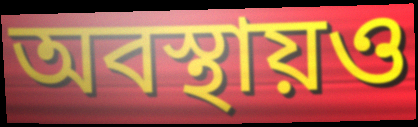
অবস্থায়ও